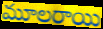
మూలరాయి